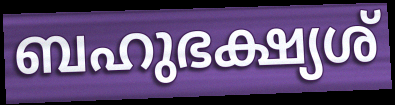
ബഹുഭക്ഷ്യശ്